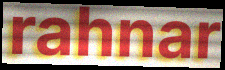
rahnar